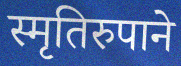
स्मृतिरुपाने